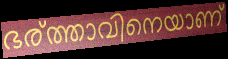
ഭര്ത്താവിനെയാണ്